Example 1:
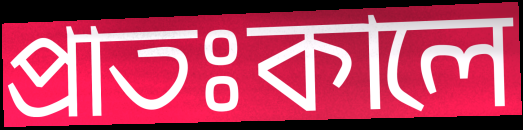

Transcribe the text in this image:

প্রাতঃকালে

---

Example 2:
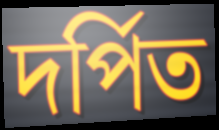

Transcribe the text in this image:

দর্পিত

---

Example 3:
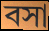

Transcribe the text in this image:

বসা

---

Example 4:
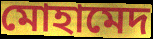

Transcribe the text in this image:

মোহামেদ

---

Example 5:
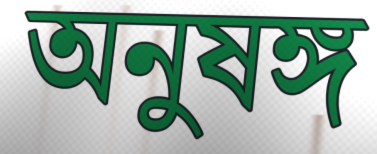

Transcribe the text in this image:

অনুষঙ্গ